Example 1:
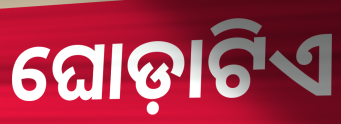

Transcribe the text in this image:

ଘୋଡ଼ାଟିଏ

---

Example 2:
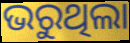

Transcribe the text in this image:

ଭରୁଥିଲା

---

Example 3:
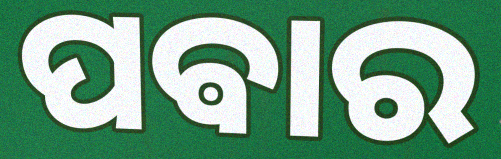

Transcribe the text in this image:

ପଵାର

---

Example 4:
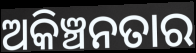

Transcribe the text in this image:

ଅକିଞ୍ଚନତାର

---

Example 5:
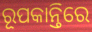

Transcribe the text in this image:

ରୂପକାନ୍ତିରେ